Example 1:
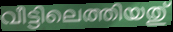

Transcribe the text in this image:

വീട്ടിലെത്തിയതു്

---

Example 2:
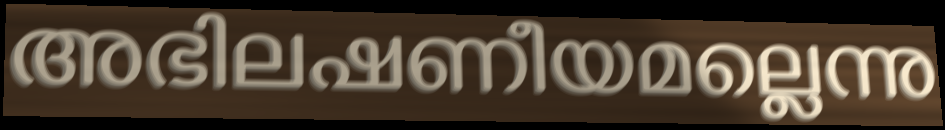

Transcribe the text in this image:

അഭിലഷണീയമല്ലെന്നു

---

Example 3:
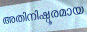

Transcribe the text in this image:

അതിനിഷ്ഠൂരമായ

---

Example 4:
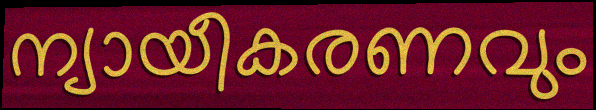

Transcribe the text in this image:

ന്യായീകരണവും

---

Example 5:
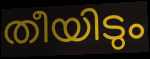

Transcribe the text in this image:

തീയിടും